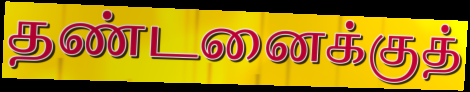
தண்டனைக்குத்